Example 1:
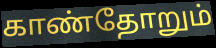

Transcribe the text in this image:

காண்தோறும்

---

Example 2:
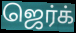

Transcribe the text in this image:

ஜெர்க்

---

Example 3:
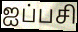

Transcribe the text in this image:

ஐப்பசி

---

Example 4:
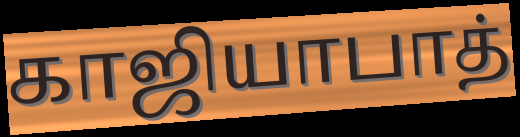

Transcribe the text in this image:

காஜியாபாத்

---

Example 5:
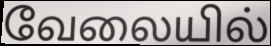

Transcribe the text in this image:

வேலையில்